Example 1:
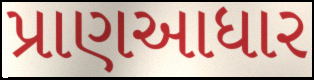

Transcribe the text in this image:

પ્રાણઆધાર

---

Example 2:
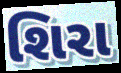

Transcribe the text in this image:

શિરા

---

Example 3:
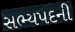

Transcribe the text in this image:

સભ્યપદની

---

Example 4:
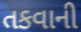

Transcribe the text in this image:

તકવાની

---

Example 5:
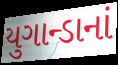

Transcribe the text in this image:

યુગાન્ડાનાં